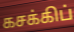
கசக்கிப்